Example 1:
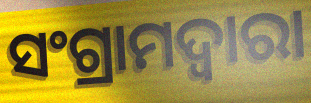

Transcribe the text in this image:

ସଂଗ୍ରାମଦ୍ଵାରା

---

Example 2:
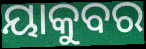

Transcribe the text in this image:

ୟାକୁବର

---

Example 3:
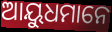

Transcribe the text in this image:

ଆୟୁଧମାନେ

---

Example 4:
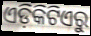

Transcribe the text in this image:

ଏଡ଼ିକିଟିଏରୁ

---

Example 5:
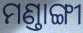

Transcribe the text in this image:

ମଣ୍ଡାଙ୍ଗୀ